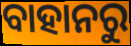
ବାହାନରୁ